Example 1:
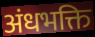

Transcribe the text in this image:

अंधभक्ति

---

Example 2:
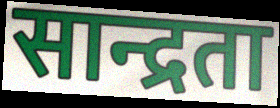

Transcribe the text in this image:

सान्द्रता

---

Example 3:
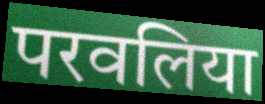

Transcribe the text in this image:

परवलिया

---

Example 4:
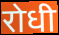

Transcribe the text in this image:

रोधी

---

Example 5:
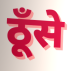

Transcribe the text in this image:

ठूँसे